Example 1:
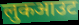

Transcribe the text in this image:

लुकआउट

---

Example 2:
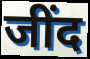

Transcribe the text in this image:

जींद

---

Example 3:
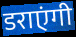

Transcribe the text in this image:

डराएंगी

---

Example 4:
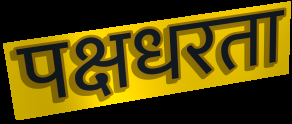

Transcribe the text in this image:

पक्षधरता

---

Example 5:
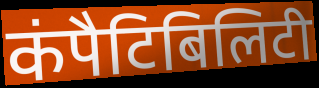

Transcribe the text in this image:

कंपैटिबिलिटी